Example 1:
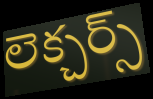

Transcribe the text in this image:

లెక్చర్స్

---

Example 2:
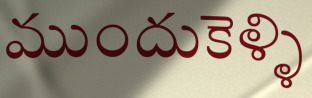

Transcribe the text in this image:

ముందుకెళ్ళి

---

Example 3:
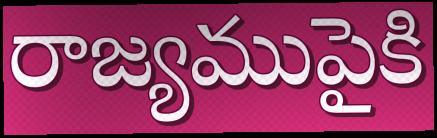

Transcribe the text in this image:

రాజ్యముపైకి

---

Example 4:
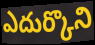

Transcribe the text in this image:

ఎదుర్కొని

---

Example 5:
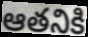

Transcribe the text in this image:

ఆతనికి